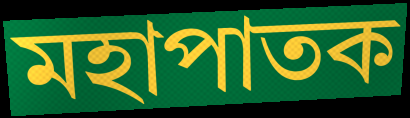
মহাপাতক